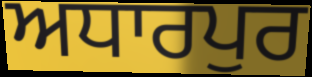
ਅਧਾਰਪੁਰ